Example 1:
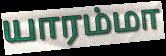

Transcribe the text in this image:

யாரம்மா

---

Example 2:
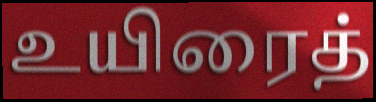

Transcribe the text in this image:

உயிரைத்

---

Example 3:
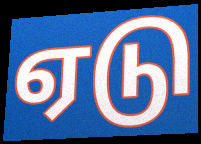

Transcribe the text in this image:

ஏடு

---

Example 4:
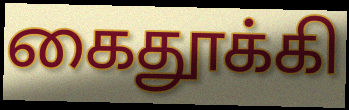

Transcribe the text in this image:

கைதூக்கி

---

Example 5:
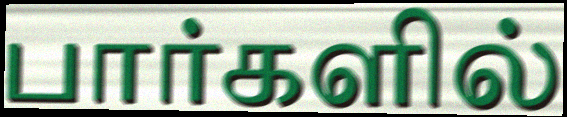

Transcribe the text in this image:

பார்களில்